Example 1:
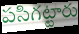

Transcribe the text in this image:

పసిగట్టారు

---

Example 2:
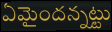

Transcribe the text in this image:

ఏమైందన్నట్టు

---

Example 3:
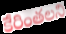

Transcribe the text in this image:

కేరింతలని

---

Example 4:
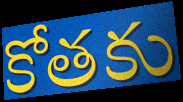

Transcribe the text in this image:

కోతకు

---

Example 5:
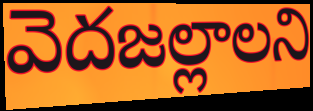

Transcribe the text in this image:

వెదజల్లాలని